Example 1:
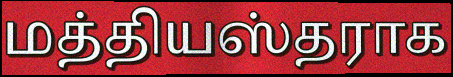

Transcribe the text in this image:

மத்தியஸ்தராக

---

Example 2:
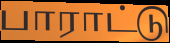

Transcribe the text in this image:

பாராட்டு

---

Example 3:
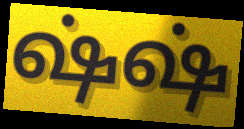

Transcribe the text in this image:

ஷ்ஷ்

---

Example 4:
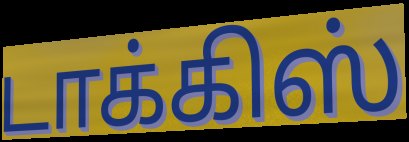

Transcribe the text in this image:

டாக்கிஸ்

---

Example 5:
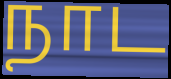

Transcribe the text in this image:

நாட